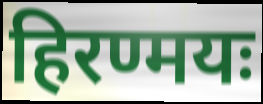
हिरण्मयः